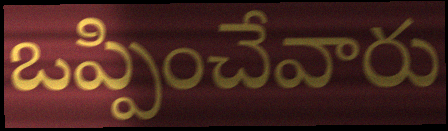
ఒప్పించేవారు